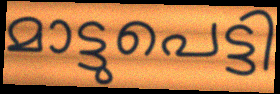
മാട്ടുപെട്ടി